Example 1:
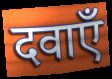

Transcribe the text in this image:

दवाएँ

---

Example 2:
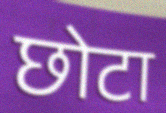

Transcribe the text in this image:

छोटा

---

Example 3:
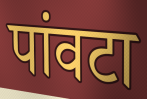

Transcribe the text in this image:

पांवटा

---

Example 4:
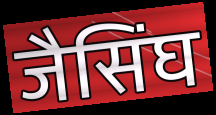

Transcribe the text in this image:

जैसिंघ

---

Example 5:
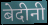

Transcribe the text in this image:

बेदीनी